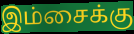
இம்சைக்கு